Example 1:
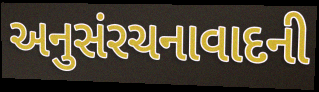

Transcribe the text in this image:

અનુસંરચનાવાદની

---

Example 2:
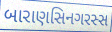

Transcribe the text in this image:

બારાણસિનગરસ્સ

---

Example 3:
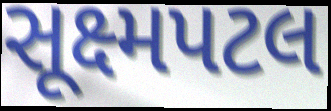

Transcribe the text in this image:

સૂક્ષ્મપટલ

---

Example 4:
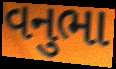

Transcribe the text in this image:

વનુભા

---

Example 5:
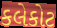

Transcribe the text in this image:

કલેકોટ